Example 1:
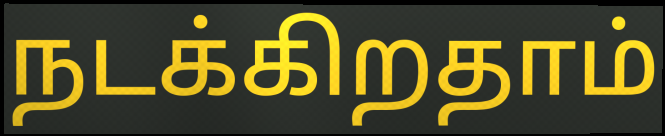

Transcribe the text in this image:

நடக்கிறதாம்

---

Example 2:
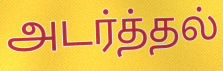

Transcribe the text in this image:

அடர்த்தல்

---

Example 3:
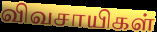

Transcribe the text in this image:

விவசாயிகள்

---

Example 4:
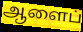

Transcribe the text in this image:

ஆளைப்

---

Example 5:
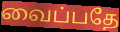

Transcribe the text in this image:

வைப்பதே